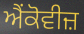
ਐਂਕੋਵੀਜ਼